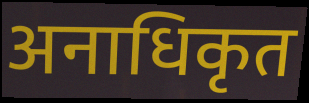
अनाधिकृत